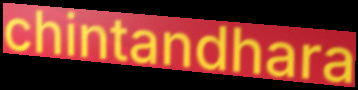
chintandhara